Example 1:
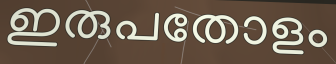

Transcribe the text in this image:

ഇരുപതോളം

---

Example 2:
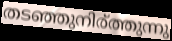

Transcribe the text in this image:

തടഞ്ഞുനിര്ത്തുന്നു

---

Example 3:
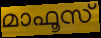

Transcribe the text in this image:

മാഫൂസ്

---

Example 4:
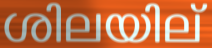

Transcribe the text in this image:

ശിലയില്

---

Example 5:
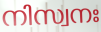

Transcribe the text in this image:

നിസ്വനഃ